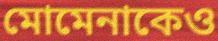
মোমেনাকেও